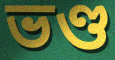
ভণ্ড